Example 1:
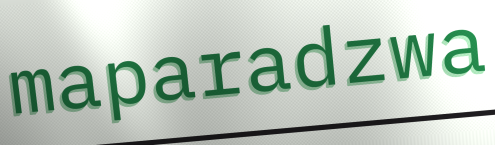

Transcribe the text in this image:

maparadzwa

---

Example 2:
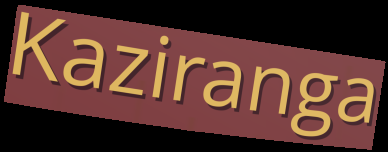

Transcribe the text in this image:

Kaziranga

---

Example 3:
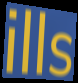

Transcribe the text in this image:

ills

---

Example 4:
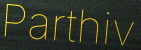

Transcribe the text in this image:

Parthiv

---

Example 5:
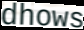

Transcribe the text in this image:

dhows